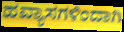
ಹವ್ಯಾಸಗಳಿಂದಾಗಿ